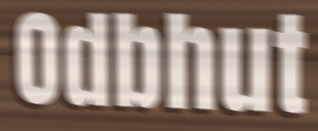
Odbhut